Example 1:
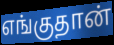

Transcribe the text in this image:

எங்குதான்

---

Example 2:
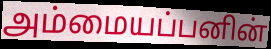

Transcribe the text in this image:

அம்மையப்பனின்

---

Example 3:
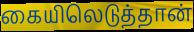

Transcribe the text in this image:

கையிலெடுத்தான்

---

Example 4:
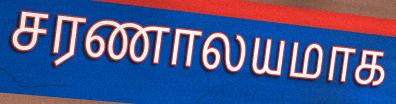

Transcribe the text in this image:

சரணாலயமாக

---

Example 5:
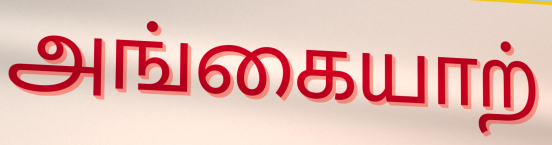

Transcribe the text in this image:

அங்கையாற்